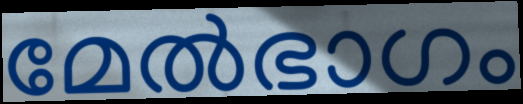
മേൽഭാഗം